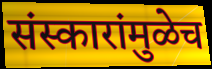
संस्कारांमुळेच